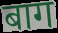
बाग